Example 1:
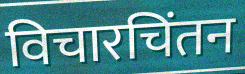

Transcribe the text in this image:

विचारचिंतन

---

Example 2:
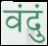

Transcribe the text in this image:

वंदुं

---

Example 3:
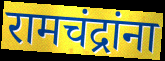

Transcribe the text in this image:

रामचंद्रांना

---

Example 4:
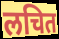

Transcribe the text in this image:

लचित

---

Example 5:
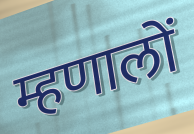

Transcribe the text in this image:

म्हणालों